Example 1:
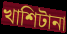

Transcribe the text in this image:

খাশিটানা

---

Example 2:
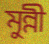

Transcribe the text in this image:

মুন্নী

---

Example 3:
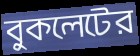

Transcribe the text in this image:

বুকলেটের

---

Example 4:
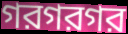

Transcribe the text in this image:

গরগরগর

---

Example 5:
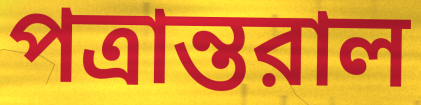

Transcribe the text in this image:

পত্রান্তরাল